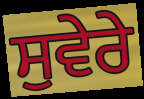
ਸੁਵੇਰੇ